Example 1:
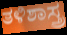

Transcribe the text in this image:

ತಳಿಶಾಸ್ತ್ರ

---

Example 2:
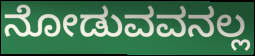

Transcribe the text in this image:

ನೋಡುವವನಲ್ಲ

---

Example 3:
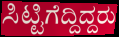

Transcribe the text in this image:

ಸಿಟ್ಟಿಗೆದ್ದಿದ್ದರು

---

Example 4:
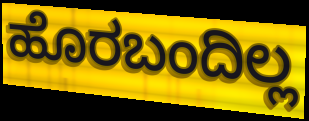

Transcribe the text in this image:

ಹೊರಬಂದಿಲ್ಲ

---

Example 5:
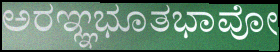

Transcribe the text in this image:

ಅರಞ್ಞಭೂತಭಾವೋ